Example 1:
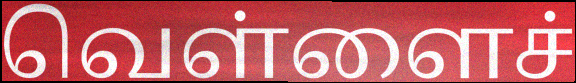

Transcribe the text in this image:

வெள்ளைச்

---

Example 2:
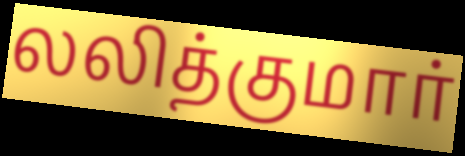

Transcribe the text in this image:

லலித்குமார்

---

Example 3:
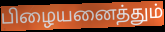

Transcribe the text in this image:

பிழையனைத்தும்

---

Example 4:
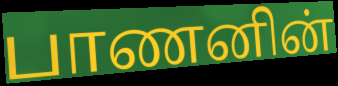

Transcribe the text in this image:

பாணனின்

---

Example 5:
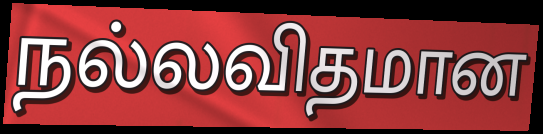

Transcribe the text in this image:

நல்லவிதமான